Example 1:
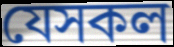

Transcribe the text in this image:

যেসকল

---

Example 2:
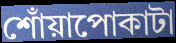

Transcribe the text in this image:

শোঁয়াপোকাটা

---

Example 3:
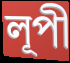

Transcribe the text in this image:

লূপী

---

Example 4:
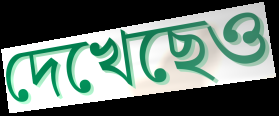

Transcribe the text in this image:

দেখেছেও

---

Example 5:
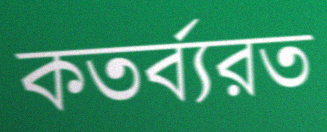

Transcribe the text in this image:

কতর্ব্যরত